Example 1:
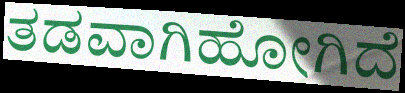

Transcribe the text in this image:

ತಡವಾಗಿಹೋಗಿದೆ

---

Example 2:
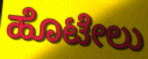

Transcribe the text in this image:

ಹೊಟೇಲು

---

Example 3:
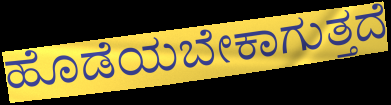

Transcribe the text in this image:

ಹೊಡೆಯಬೇಕಾಗುತ್ತದೆ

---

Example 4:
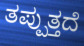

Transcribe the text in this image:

ತಪ್ಪುತ್ತದೆ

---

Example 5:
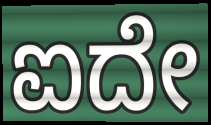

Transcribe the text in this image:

ಐದೇ